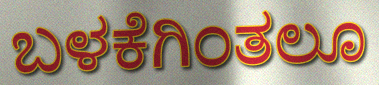
ಬಳಕೆಗಿಂತಲೂ